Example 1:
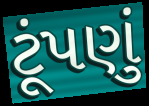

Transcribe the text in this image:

ટૂંપણું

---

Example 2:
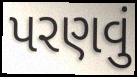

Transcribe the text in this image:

પરણવું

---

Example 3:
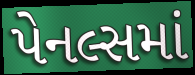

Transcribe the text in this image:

પેનલ્સમાં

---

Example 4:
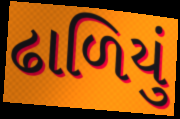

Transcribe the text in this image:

ઢાળિયું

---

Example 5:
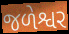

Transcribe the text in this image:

જળેશ્વર